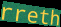
rreth